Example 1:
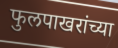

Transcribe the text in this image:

फुलपाखरांच्या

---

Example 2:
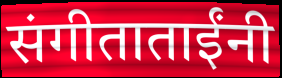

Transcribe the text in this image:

संगीताताईंनी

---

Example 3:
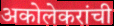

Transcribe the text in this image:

अकोलेकरांची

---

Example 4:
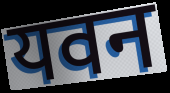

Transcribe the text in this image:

यवन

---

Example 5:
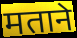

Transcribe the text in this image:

मताने